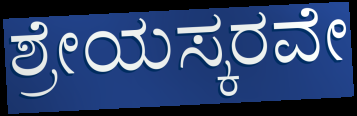
ಶ್ರೇಯಸ್ಕರವೇ